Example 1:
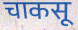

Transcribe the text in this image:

चाकसू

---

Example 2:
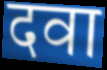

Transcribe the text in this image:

दवा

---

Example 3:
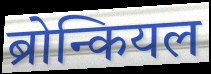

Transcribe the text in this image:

ब्रोन्कियल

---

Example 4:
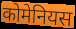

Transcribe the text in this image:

कोमेनियस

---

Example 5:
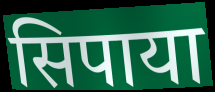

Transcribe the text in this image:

सिपाया